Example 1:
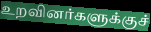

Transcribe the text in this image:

உறவினர்களுக்குச்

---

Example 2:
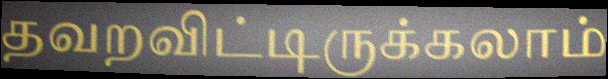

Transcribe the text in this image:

தவறவிட்டிருக்கலாம்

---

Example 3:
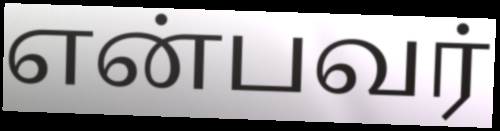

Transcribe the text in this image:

என்பவர்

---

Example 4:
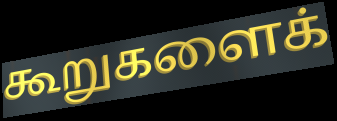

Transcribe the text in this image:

கூறுகளைக்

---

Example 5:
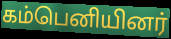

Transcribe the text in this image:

கம்பெனியினர்